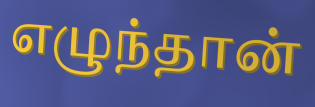
எழுந்தான்